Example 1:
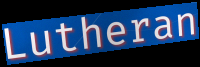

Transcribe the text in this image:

Lutheran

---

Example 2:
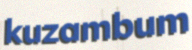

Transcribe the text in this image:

kuzambum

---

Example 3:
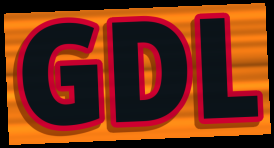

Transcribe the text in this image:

GDL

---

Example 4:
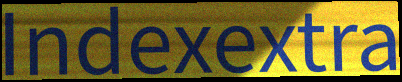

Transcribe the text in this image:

Indexextra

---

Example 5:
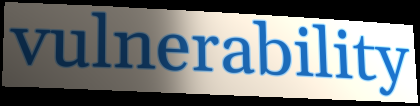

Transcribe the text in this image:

vulnerability